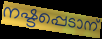
നഷ്ടപ്പെടാന്